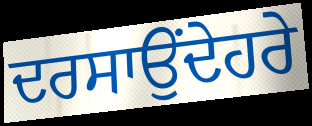
ਦਰਸਾਉਂਦੇਹਰੇ